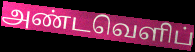
அண்டவெளிப்